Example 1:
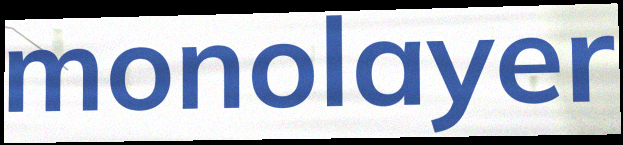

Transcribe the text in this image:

monolayer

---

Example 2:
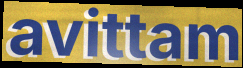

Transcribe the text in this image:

avittam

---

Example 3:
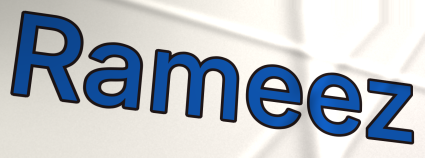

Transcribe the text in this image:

Rameez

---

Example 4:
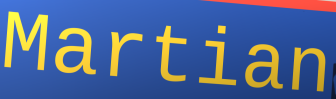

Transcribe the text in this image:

Martian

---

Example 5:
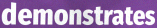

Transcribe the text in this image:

demonstrates